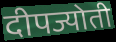
दीपज्योती